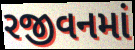
રજીવનમાં